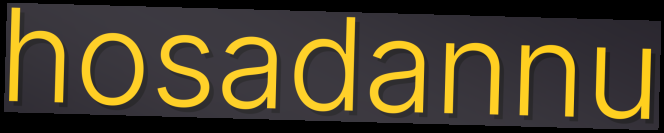
hosadannu